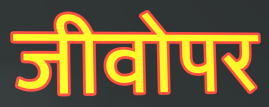
जीवोपर